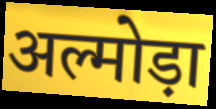
अल्मोड़ा